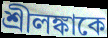
শ্রীলঙ্কাকে